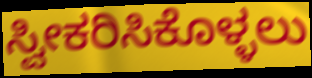
ಸ್ವೀಕರಿಸಿಕೊಳ್ಳಲು